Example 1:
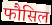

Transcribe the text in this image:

फौसिल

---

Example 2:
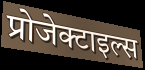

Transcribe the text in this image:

प्रोजेक्टाइल्स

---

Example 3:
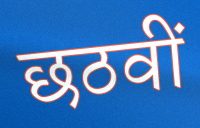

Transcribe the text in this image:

छठवीं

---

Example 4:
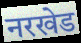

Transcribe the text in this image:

नरखेड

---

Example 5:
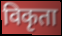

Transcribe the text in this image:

विकृता